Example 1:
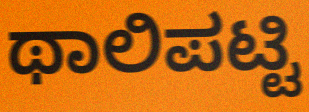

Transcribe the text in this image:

ಥಾಲಿಪಟ್ಟಿ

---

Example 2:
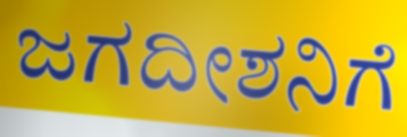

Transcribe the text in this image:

ಜಗದೀಶನಿಗೆ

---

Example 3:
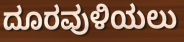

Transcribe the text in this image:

ದೂರವುಳಿಯಲು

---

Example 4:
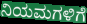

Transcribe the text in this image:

ನಿಯಮಗಳಿಗೆ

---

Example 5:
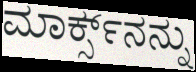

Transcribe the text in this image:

ಮಾರ್ಕ್ಸ್‌ನನ್ನು